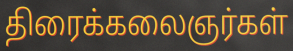
திரைக்கலைஞர்கள்